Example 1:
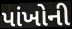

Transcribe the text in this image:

પાંખોની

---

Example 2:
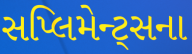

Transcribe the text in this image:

સપ્લિમેન્ટ્સના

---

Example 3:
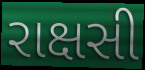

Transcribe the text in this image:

રાક્ષસી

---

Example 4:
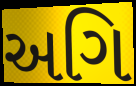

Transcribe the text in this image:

અગિ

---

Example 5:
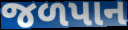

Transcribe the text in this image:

જળપાન